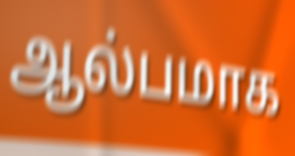
ஆல்பமாக